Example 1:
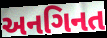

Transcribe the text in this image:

અનગિનત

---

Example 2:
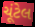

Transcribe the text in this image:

ચૂંટેલ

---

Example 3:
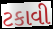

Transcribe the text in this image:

ટકાવી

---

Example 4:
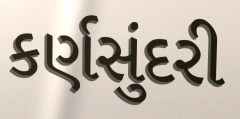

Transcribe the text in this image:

કર્ણસુંદરી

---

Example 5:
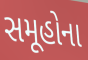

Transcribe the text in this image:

સમૂહોના